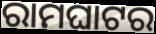
ରାମଘାଟର